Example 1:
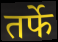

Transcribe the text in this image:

तर्फे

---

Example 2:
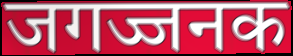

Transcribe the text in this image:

जगज्जनक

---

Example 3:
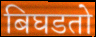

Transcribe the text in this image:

बिघडतो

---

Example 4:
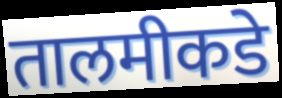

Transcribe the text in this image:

तालमीकडे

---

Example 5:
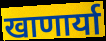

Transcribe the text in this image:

खाणार्या